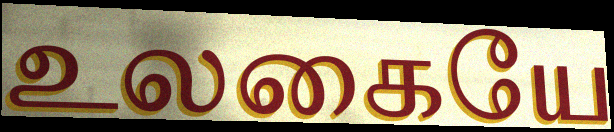
உலகையே